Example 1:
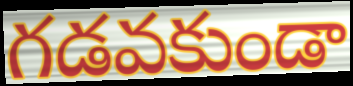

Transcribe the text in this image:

గడవకుండా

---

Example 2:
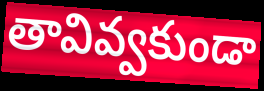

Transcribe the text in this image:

తావివ్వకుండా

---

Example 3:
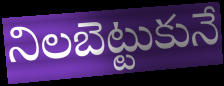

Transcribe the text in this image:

నిలబెట్టుకునే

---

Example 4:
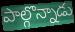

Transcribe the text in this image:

పాల్గొన్నాడు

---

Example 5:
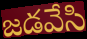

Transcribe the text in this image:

జడవేసి